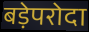
बड़ेपरोदा